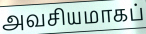
அவசியமாகப்